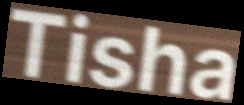
Tisha